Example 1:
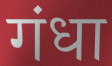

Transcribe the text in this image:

गंधा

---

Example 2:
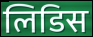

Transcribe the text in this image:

लिडिस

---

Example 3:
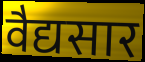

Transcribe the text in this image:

वैद्यसार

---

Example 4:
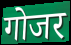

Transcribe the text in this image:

गोजर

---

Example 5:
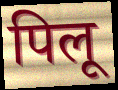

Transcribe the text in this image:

पिलू